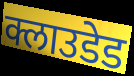
क्लाउडेड